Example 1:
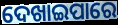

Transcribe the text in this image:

ଦେଖାଇପାରେ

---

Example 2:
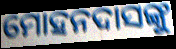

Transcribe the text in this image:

ମୋହନଦାସଙ୍କୁ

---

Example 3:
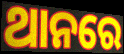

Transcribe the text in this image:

ଥାନରେ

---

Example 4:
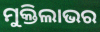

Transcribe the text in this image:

ମୁକ୍ତିଲାଭର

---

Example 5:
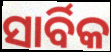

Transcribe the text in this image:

ସାର୍ବିକ